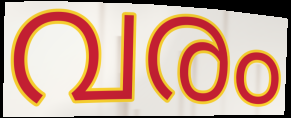
വരം